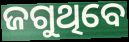
ଜଗୁଥିବେ